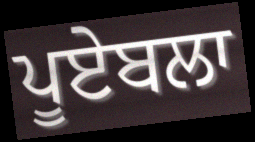
ਪੂਏਬਲਾ